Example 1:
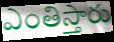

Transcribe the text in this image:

ఎంతిస్తారు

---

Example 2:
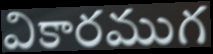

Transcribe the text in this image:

వికారముగ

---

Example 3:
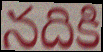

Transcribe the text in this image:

నదికి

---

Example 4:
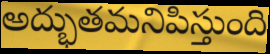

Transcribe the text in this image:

అద్భుతమనిపిస్తుంది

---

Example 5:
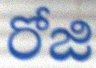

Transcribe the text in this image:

రోజి